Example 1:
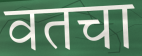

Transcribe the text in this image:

वतचा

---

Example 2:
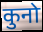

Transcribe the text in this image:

कुनो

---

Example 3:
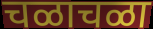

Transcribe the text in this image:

चळाचळा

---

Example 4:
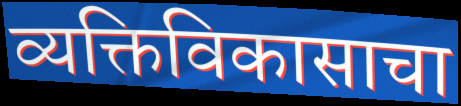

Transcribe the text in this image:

व्यक्तिविकासाचा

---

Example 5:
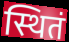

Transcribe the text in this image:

स्थितं